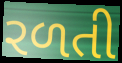
રળતી